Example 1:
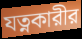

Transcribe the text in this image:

যত্নকারীর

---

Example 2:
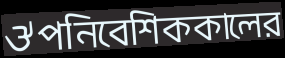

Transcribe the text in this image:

ঔপনিবেশিককালের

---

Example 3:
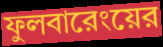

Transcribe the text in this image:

ফুলবারেংয়ের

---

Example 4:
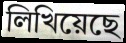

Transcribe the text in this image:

লিখিয়েছে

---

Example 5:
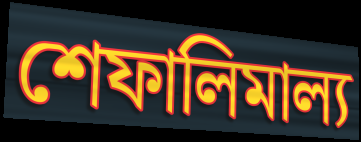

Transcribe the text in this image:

শেফালিমাল্য